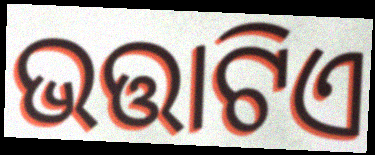
ଭତ୍ତାଟିଏ